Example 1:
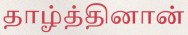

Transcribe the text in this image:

தாழ்த்தினான்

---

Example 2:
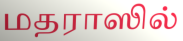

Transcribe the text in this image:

மதராஸில்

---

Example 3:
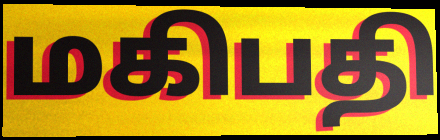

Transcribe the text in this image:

மகிபதி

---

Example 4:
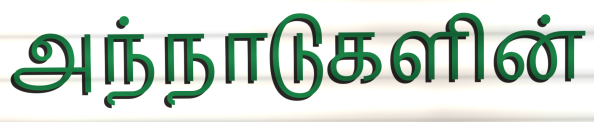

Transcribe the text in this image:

அந்நாடுகளின்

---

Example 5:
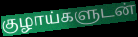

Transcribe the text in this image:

குழாய்களுடன்